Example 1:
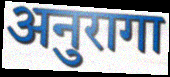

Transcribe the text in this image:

अनुरागा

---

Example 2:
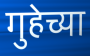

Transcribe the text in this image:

गुहेच्या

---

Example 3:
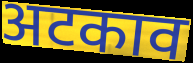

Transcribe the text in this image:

अटकाव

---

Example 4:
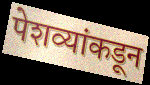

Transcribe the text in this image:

पेशव्यांकडून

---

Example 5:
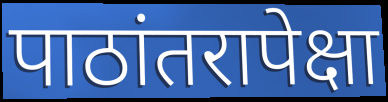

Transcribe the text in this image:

पाठांतरापेक्षा